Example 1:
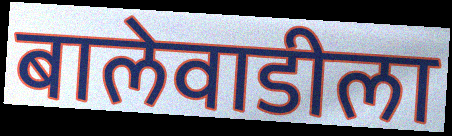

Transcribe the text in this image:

बालेवाडीला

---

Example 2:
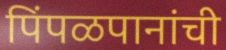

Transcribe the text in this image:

पिंपळपानांची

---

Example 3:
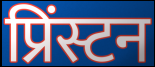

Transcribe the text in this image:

प्रिंस्टन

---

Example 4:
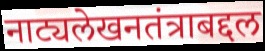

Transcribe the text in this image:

नाट्यलेखनतंत्राबद्दल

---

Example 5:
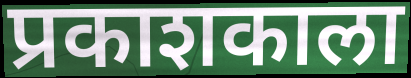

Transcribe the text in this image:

प्रकाशकाला